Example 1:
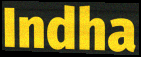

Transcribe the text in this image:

Indha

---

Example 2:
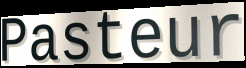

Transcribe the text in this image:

Pasteur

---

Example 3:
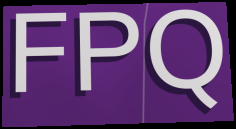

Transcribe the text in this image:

FPQ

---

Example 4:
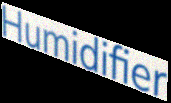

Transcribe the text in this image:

Humidifier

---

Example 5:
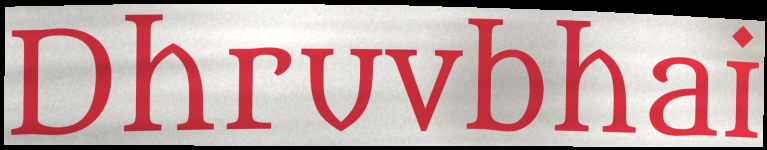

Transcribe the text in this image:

Dhruvbhai